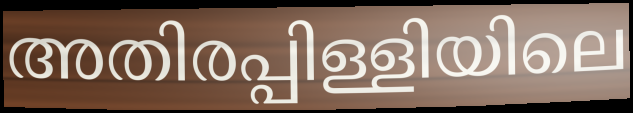
അതിരപ്പിള്ളിയിലെ